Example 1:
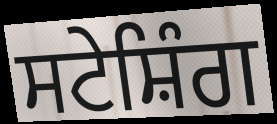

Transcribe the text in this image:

ਸਟੇਸ਼ਿੰਗ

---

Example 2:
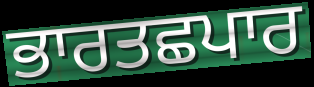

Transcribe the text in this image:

ਭਾਰਤਛਪਾਰ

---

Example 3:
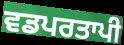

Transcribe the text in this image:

ਵਡਪਰਤਾਪੀ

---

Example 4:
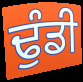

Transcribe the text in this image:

ਢੁੰਡੀ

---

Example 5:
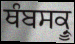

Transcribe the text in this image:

ਥੰਬਸਕ੍ਰੂ